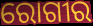
ରୋଗୀର